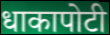
धाकापोटी